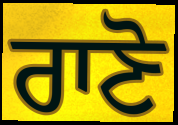
ਰਾਣੋ